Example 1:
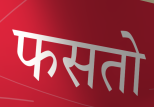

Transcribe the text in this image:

फसतो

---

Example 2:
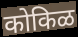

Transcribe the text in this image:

कोकिळ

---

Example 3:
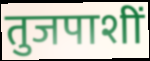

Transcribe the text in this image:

तुजपाशीं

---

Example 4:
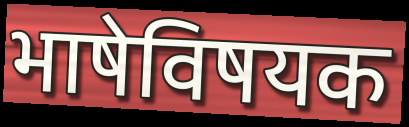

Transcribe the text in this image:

भाषेविषयक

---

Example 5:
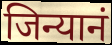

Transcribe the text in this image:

जिन्यानं